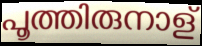
പൂത്തിരുനാള്